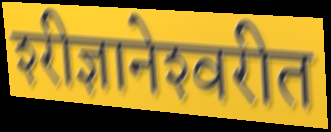
श्रीज्ञानेश्वरीत